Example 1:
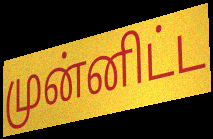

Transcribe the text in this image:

முன்னிட்ட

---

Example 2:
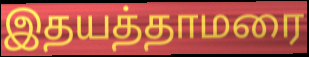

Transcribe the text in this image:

இதயத்தாமரை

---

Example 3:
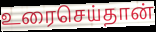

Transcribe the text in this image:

உரைசெய்தான்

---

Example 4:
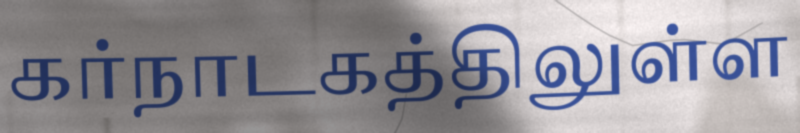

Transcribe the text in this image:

கர்நாடகத்திலுள்ள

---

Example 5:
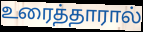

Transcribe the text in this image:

உரைத்தாரால்